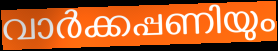
വാർക്കപ്പണിയും